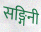
सङ्गिनी